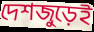
দেশজুড়েই